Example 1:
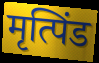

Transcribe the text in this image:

मृत्पिंड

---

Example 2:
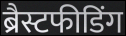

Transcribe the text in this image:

ब्रैस्टफीडिंग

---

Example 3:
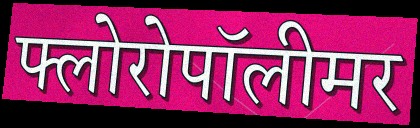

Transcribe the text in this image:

फ्लोरोपॉलीमर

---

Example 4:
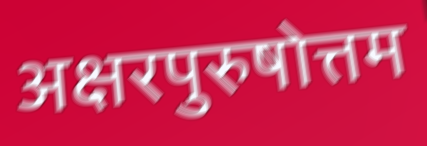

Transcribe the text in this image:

अक्षरपुरुषोत्तम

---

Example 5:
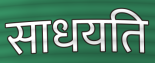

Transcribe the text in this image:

साधयति